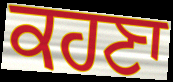
ਕਹਣਾ